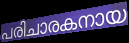
പരിചാരകനായ